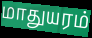
மாதுயரம்